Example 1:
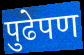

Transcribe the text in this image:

पुढेपण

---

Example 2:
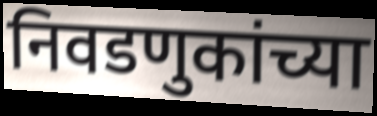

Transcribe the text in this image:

निवडणुकांच्या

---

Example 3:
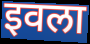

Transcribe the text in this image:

इवला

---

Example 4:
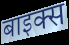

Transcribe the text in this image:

बाइक्स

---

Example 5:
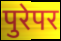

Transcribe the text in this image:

पुरेपर